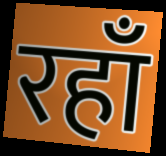
रहाँ